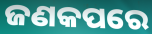
ଜଣକପରେ